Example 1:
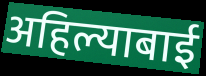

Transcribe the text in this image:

अहिल्याबाई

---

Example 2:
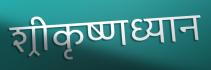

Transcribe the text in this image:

श्रीकृष्णध्यान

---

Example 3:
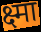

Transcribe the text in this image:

क्ष्मा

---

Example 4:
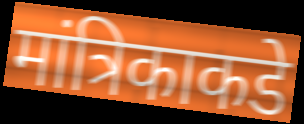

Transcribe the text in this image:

मांत्रिकाकडे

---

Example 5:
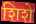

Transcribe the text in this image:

शिशे